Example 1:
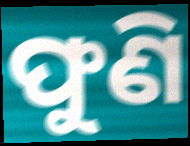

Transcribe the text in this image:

ଫୁଣି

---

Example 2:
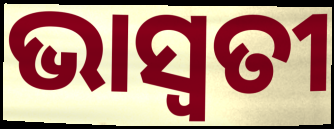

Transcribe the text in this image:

ଭାସ୍ବତୀ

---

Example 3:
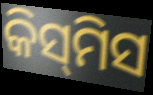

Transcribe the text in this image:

କିସ୍‌ମିସ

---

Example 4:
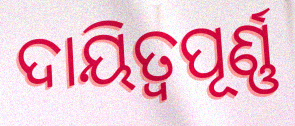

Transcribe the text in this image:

ଦାୟିତ୍ବପୂର୍ଣ୍ଣ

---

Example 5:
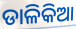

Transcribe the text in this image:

ଡାଳିକିଆ